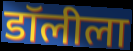
डॉलीला